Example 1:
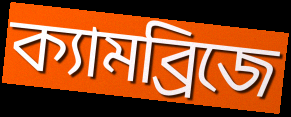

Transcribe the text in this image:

ক্যামব্রিজে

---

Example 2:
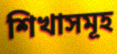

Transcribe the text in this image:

শিখাসমূহ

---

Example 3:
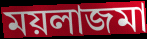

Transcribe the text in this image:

ময়লাজমা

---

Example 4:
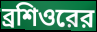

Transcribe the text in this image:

ব্রশিওরের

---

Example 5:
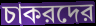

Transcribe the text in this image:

চাকরদের